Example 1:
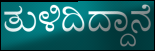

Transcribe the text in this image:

ತುಳಿದಿದ್ದಾನೆ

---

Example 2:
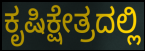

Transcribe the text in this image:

ಕೃಷಿಕ್ಷೇತ್ರದಲ್ಲಿ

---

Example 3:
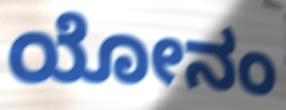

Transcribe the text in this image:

ಯೋನಂ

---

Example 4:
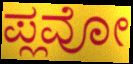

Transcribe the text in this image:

ಪ್ಲವೋ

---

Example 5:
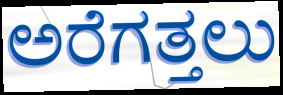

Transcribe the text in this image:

ಅರೆಗತ್ತಲು